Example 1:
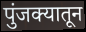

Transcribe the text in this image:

पुंजक्यातून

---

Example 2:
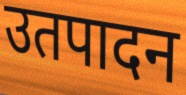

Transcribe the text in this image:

उतपादन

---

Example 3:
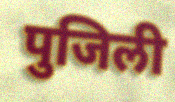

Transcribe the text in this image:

पुजिली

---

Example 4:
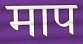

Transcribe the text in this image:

माप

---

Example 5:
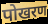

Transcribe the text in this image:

पोखरण